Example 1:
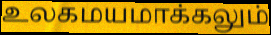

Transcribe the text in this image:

உலகமயமாக்கலும்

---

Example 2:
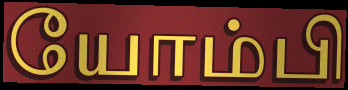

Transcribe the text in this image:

யோம்பி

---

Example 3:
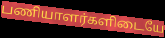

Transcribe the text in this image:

பணியாளர்களிடையே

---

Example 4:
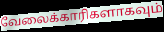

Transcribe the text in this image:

வேலைக்காரிகளாகவும்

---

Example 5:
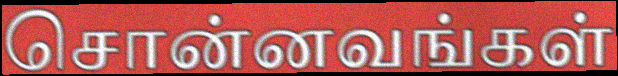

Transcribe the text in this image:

சொன்னவங்கள்